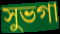
সুভগা